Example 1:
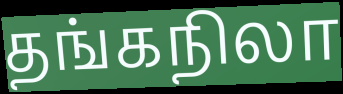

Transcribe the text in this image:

தங்கநிலா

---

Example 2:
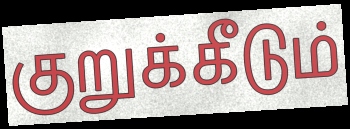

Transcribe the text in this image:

குறுக்கீடும்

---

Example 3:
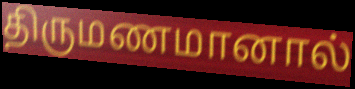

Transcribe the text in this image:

திருமணமானால்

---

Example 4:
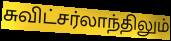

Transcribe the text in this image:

சுவிட்சர்லாந்திலும்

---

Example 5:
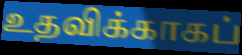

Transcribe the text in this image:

உதவிக்காகப்